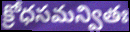
క్రోధసమన్వితః